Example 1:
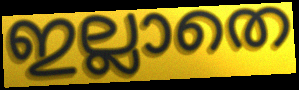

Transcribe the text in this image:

ഇല്ലാതെ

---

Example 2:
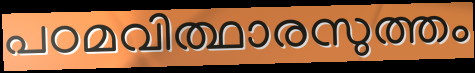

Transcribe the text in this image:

പഠമവിത്ഥാരസുത്തം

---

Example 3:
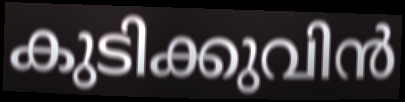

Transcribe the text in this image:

കുടിക്കുവിൻ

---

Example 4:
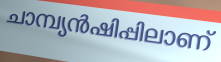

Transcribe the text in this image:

ചാമ്പ്യൻഷിപ്പിലാണ്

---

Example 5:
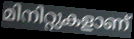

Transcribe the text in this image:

മിനിറ്റുകളാണ്